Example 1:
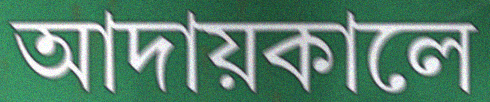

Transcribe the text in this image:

আদায়কালে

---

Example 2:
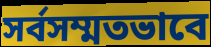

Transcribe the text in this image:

সর্বসম্মতভাবে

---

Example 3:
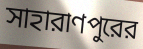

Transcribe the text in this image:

সাহারাণপুরের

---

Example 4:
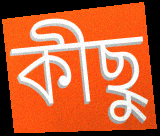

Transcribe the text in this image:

কীছু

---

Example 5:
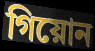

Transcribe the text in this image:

গিয়োন